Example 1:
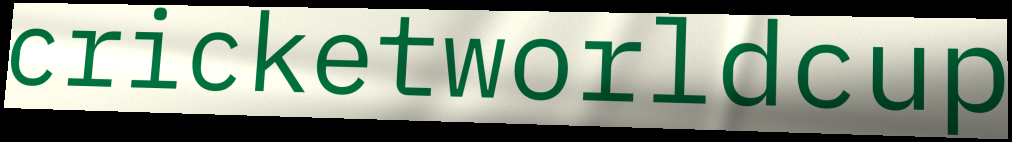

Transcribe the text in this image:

cricketworldcup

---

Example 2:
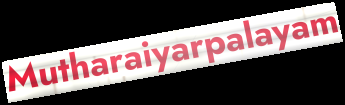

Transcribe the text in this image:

Mutharaiyarpalayam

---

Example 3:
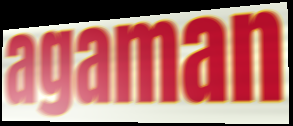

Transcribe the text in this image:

agaman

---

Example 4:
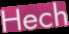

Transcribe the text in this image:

Hech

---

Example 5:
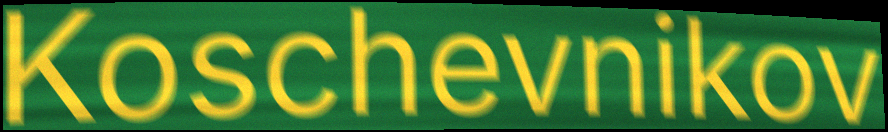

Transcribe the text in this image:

Koschevnikov